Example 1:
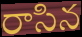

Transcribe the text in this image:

రాసిన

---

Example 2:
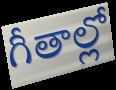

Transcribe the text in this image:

గీతాల్లో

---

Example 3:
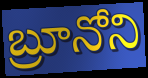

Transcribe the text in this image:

బ్రూనోని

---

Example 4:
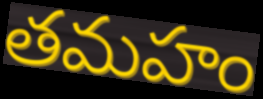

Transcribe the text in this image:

తమహం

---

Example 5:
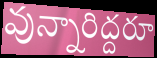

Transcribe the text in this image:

వున్నారిద్దరూ